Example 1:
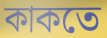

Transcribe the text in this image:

কাকতে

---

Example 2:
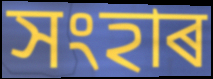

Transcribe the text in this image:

সংহাৰ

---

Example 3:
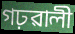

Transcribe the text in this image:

গঢ়ৱালী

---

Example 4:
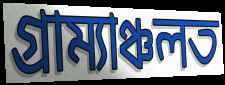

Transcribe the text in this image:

গ্ৰাম্যাঞ্চলত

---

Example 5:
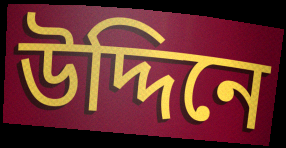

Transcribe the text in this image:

উদ্দিনে